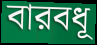
বারবধূ